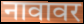
नावावर